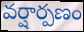
వర్షార్పణం